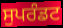
ਸੁਪਰੰਡਟ